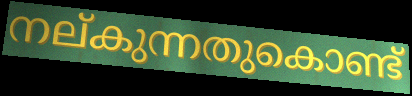
നല്കുന്നതുകൊണ്ട്